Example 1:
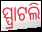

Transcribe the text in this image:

ସ୍ପ୍ରାଟଲି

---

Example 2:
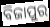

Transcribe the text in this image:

ବିଜାପୁର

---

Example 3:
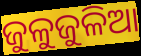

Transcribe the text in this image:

ଜୁଳୁଜୁଳିଆ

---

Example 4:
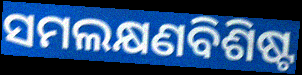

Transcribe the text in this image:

ସମଲକ୍ଷଣବିଶିଷ୍ଟ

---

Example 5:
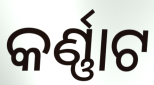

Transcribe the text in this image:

କର୍ଣ୍ଣାଟ